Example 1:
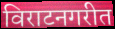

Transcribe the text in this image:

विराटनगरीत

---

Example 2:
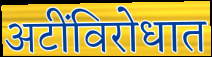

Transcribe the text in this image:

अटींविरोधात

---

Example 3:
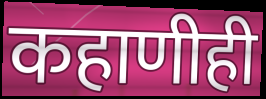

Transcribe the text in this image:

कहाणीही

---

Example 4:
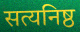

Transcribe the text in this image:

सत्यनिष्ठ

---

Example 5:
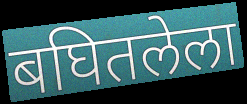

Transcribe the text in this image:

बघितलेला